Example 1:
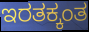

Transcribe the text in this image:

ಇರತಕ್ಕಂತ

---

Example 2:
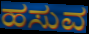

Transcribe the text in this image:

ಹಸುವ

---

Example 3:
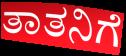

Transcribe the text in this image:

ತಾತನಿಗೆ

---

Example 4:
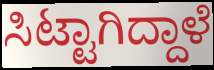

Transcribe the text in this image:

ಸಿಟ್ಟಾಗಿದ್ದಾಳೆ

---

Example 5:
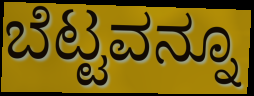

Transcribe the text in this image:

ಬೆಟ್ಟವನ್ನೂ